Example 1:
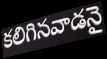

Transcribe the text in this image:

కలిగినవాడనై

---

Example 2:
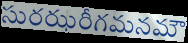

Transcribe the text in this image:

సురఝరీగమనమౌ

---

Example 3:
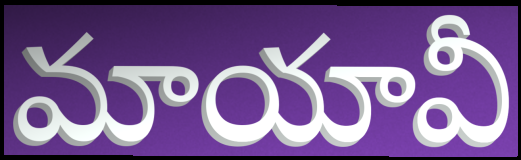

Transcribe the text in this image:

మాయావీ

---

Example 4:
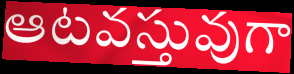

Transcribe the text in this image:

ఆటవస్తువుగా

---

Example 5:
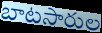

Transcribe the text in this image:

బాటసారుల